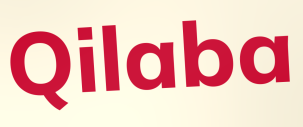
Qilaba